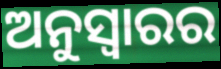
ଅନୁସ୍ଵାରର